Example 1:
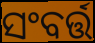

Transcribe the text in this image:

ସଂବର୍ତ୍ତ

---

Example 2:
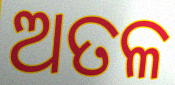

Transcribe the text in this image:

ଅତଳ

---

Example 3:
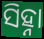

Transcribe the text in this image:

ସିହ୍ନା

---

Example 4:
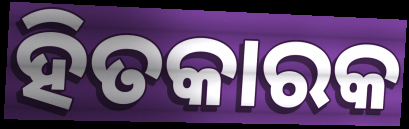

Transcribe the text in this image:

ହିତକାରକ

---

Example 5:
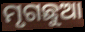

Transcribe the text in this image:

ମୃଗଛୁଆ